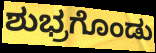
ಶುಭ್ರಗೊಂಡು